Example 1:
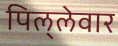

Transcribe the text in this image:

पिल्लेवार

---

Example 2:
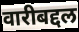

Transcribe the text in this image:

वारीबद्दल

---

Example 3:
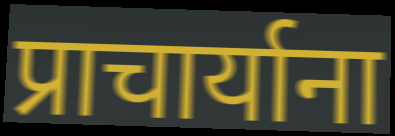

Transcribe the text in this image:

प्राचार्याना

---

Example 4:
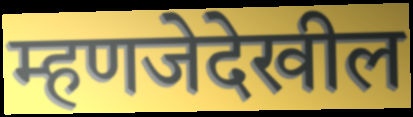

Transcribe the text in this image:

म्हणजेदेखील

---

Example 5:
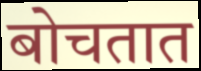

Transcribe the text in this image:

बोचतात